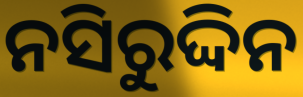
ନସିରୁଦ୍ଦିନ